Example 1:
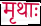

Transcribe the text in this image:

मृथाः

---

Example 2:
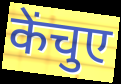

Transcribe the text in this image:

केंचुए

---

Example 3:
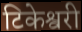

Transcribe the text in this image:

टिकेश्वरी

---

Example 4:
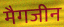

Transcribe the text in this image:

मैगजीन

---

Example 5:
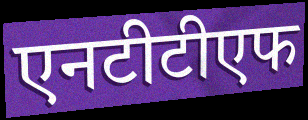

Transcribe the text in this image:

एनटीटीएफ